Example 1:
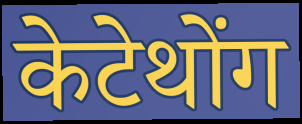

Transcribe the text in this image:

केटेथोंग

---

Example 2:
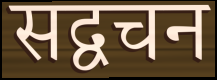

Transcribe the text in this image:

सद्वचन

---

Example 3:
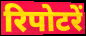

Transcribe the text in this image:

रिपोटरें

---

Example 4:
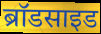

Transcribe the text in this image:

ब्रॉडसाइड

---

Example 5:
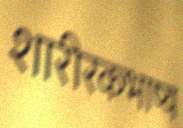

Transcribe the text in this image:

शारीरकभाष्य